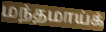
மந்தமாய்க்